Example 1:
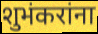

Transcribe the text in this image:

शुभंकरांना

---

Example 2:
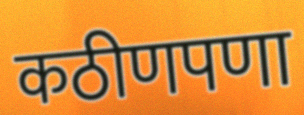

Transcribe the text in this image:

कठीणपणा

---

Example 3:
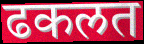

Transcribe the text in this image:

ढकलत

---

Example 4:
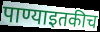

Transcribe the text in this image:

पाण्याइतकीच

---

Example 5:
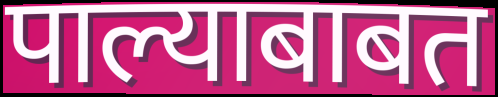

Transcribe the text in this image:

पाल्याबाबत